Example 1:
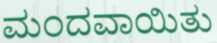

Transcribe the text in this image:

ಮಂದವಾಯಿತು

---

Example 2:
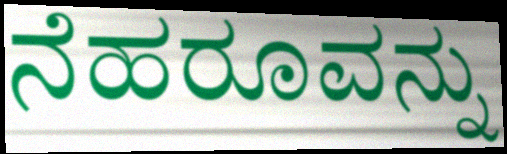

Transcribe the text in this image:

ನೆಹರೂವನ್ನು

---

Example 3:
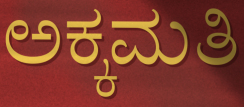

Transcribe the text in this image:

ಅಕ್ಕಮತಿ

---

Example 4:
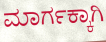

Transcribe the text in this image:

ಮಾರ್ಗಕ್ಕಾಗಿ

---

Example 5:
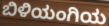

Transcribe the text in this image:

ಬಿಳಿಯಂಗಿಯ